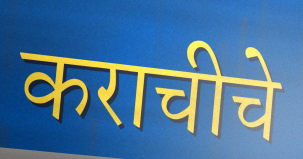
कराचीचे